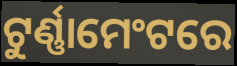
ଟୁର୍ଣ୍ଣାମେଂଟରେ